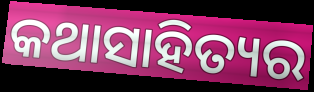
କଥାସାହିତ୍ୟର